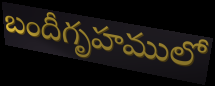
బందీగృహములో